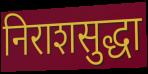
निराशसुद्धा